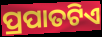
ପ୍ରପାତଟିଏ